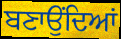
ਬਣਾਉਂਦਿਆਂ